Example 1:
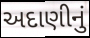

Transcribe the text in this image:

અદાણીનું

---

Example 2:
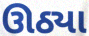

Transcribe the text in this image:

ઊઠ્યા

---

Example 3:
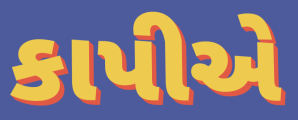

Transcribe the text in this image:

કાપીએ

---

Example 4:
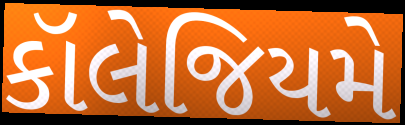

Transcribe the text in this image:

કૉલેજિયમે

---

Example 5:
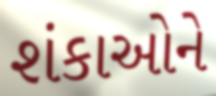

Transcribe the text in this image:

શંકાઓને